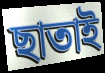
ছাতাই